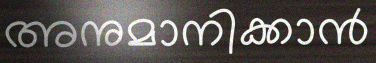
അനുമാനിക്കാൻ